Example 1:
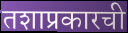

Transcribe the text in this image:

तशाप्रकारची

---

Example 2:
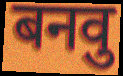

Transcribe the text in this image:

बनवु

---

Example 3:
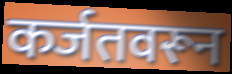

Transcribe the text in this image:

कर्जतवरून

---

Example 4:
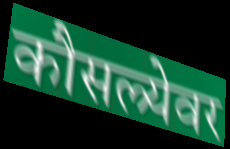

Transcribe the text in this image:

कौसल्येवर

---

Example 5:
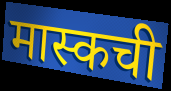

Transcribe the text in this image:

मास्कची